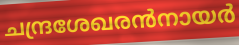
ചന്ദ്രശേഖരൻനായർ